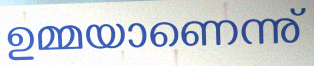
ഉമ്മയാണെന്നു്